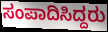
ಸಂಪಾದಿಸಿದ್ದರು